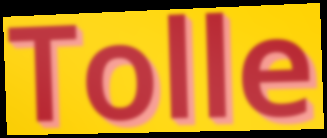
Tolle